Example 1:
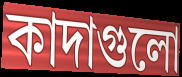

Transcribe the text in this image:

কাদাগুলো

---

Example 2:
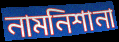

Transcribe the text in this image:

নামনিশানা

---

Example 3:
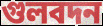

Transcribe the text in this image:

গুলবদন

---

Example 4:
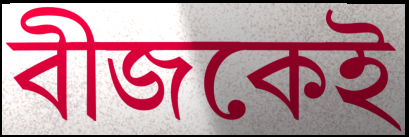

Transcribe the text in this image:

বীজকেই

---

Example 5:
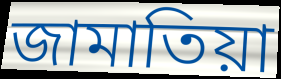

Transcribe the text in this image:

জামাতিয়া